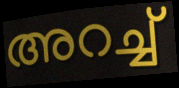
അറച്ച്